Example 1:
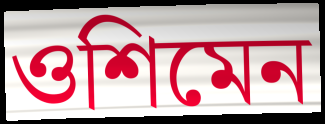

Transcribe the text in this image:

ওশিমেন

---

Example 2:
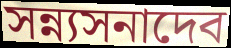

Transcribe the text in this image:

সন্ন্যসনাদেব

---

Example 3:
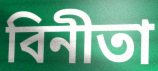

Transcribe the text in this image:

বিনীতা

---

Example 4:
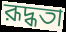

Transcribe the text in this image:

রূদ্ধতা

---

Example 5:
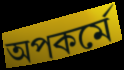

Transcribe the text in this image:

অপকর্মে